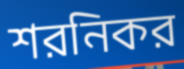
শরনিকর